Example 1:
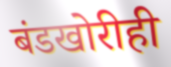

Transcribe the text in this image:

बंडखोरीही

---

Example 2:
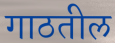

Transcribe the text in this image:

गाठतील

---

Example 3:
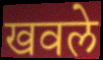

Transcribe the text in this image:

खवले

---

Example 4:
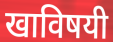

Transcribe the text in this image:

खाविषयी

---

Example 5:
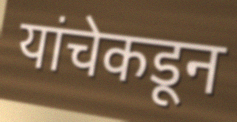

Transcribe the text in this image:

यांचेकडून